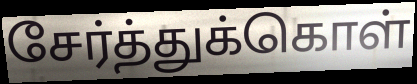
சேர்த்துக்கொள்